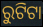
ରୁଟିଟା